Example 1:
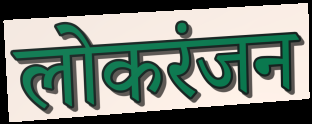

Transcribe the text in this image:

लोकरंजन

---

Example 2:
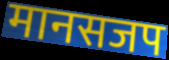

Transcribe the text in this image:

मानसजप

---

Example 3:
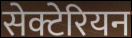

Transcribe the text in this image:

सेक्टेरियन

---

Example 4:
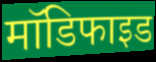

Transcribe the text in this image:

मॉडिफाइड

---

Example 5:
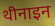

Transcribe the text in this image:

थीनाइन